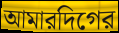
আমারদিগের